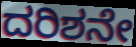
ದರಿಶನೇ